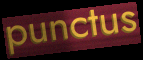
punctus